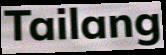
Tailang